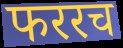
फररच